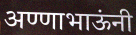
अण्णाभाऊंनी